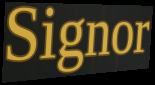
Signor